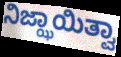
ನಿಜ್ಝಾಯಿತ್ವಾ